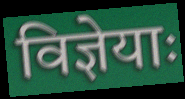
विज्ञेयाः